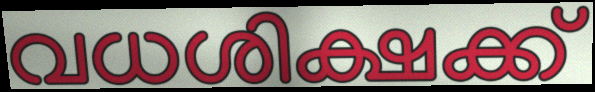
വധശിക്ഷക്ക്